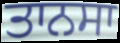
ਤਾਨਸਾ